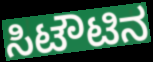
ಸಿಟೌಟಿನ